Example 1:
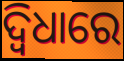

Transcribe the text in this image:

ଦ୍ଵିଧାରେ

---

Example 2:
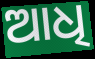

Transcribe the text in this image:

ଆଧି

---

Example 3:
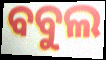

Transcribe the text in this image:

ବବୁଲ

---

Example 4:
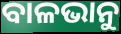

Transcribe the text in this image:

ବାଳଭାନୁ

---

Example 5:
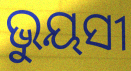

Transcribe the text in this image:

ଭୁୟସୀ